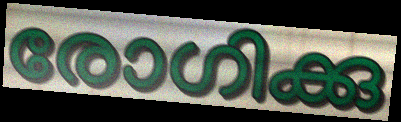
രോഗിക്കു